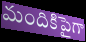
మందికిపైగా